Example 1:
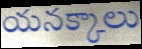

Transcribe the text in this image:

యనక్కాలు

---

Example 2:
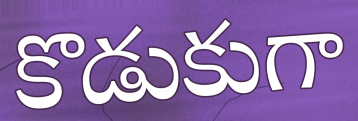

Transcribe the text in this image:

కొడుకుగా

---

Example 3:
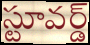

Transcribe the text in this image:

స్టూవర్డ్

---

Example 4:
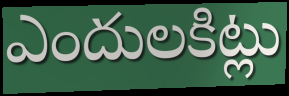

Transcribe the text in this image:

ఎందులకిట్లు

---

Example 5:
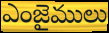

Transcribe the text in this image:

ఎంజైములు